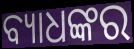
ବ୍ୟାଧଙ୍କର